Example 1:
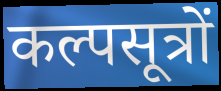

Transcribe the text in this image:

कल्पसूत्रों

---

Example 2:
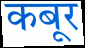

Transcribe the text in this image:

कबूर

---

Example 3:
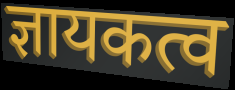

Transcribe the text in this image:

ज्ञायकत्व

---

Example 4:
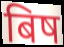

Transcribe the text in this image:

बिष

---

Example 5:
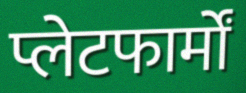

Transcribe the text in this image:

प्लेटफार्मों